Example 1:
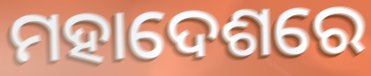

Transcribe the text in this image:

ମହାଦେଶରେ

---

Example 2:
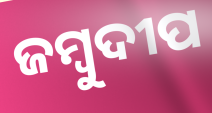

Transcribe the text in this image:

ଜମ୍ବୁଦୀପ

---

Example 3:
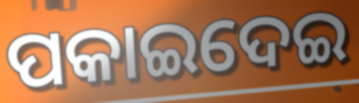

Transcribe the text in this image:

ପକାଇଦେଇ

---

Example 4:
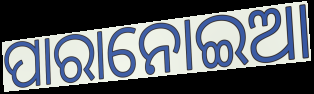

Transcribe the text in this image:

ପାରାନୋଇଆ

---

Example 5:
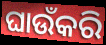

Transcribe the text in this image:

ଘାଉଁକରି